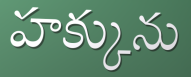
హక్కును